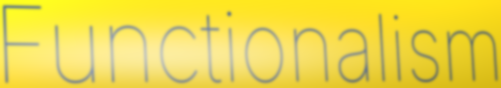
Functionalism